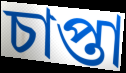
চাপ্তা